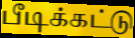
பீடிக்கட்டு